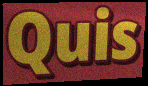
Quis